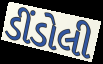
ડીંડોલી